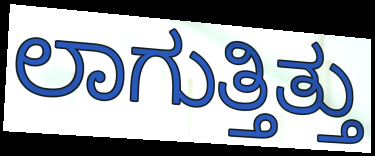
ಲಾಗುತ್ತಿತ್ತು